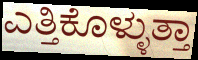
ಎತ್ತಿಕೊಳ್ಳುತ್ತಾ